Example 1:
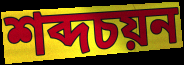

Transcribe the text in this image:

শব্দচয়ন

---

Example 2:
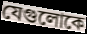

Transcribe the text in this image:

যেগুলোকে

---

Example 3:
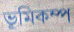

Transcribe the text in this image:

ভূমিকম্প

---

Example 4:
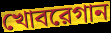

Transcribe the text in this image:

খোবরেগান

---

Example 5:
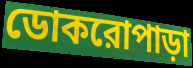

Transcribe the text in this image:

ডোকরোপাড়া